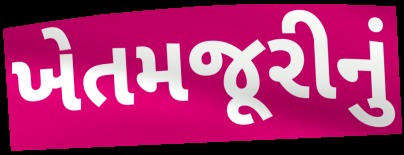
ખેતમજૂરીનું